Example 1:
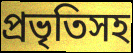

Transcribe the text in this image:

প্রভৃতিসহ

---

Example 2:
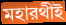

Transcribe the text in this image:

মহারথীই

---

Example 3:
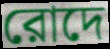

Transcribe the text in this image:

রোদে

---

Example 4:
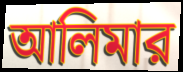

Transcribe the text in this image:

আলিমার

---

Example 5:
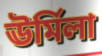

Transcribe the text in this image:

ঊর্মিলা